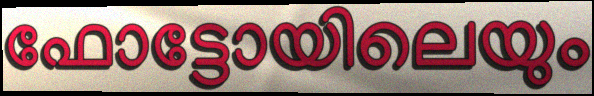
ഫോട്ടോയിലെയും